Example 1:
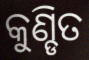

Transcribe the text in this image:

କୁଣ୍ଡିତ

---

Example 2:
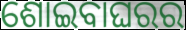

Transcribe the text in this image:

ଶୋଇବାଘରର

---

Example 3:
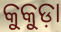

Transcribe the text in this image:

କୁକୁଡ଼ା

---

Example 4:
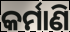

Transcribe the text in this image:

କର୍ମାଣି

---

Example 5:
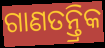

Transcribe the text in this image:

ଗାଣତନ୍ତ୍ରିକ